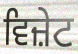
ਵਿਜ਼ੇਟ